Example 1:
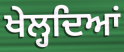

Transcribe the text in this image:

ਖੇਲ੍ਹਦਿਆਂ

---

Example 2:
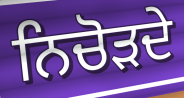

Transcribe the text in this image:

ਨਿਚੋੜਦੇ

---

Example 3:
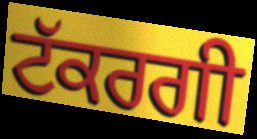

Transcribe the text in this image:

ਟੱਕਰਗੀ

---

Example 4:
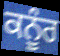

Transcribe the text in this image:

ਕਨੂੰਰ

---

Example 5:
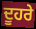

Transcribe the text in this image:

ਦੂਹਰੇ